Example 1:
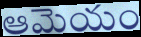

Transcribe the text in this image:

ఆమెయం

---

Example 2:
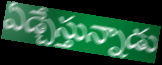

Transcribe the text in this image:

ఏడ్చేస్తున్నాడు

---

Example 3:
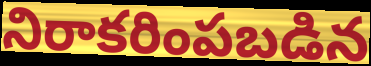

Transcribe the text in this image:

నిరాకరింపబడిన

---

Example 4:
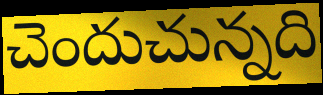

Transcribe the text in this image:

చెందుచున్నది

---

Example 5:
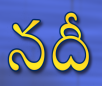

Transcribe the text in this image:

నదీ